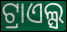
ଟ୍ରାଏଲ୍ସ